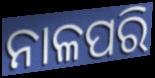
ନାଳପରି